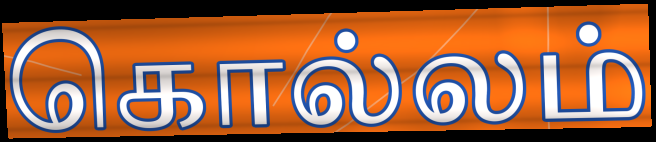
கொல்லம்